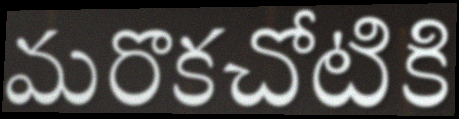
మరొకచోటికి